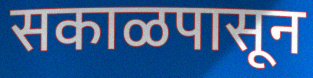
सकाळपासून